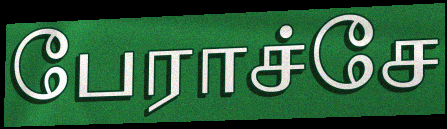
பேராச்சே